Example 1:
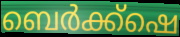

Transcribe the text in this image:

ബെർക്ക്ഷെ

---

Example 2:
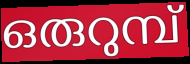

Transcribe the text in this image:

ഒരുറുമ്പ്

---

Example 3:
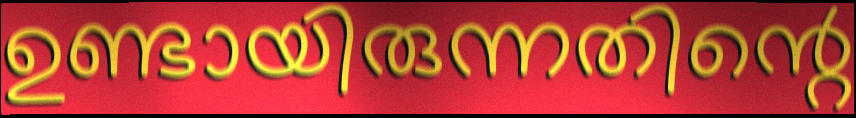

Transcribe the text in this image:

ഉണ്ടായിരുന്നതിന്റെ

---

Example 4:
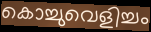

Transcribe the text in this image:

കൊച്ചുവെളിച്ചം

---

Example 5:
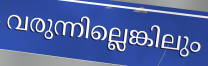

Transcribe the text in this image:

വരുന്നില്ലെങ്കിലും